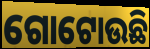
ଗୋଟୋଉଛି